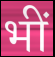
भीं